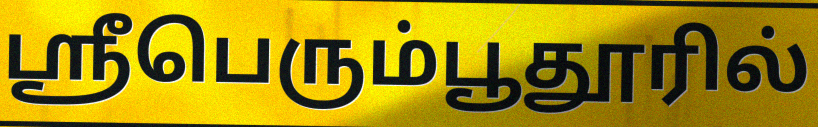
ஸ்ரீபெரும்பூதூரில்